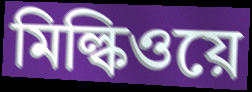
মিল্কিওয়ে